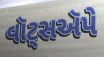
વૉટ્સઍપે